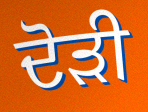
ਦੋੜੀ